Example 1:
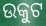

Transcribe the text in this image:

ଉକୁଟ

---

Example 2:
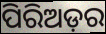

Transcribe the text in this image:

ପିରିଅଡ଼ର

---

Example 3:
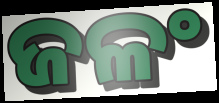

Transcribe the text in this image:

ଜଳଂ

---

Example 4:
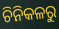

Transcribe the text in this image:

ଚିନିକଳରୁ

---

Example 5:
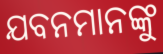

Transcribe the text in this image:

ଯବନମାନଙ୍କୁ